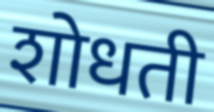
शोधती